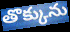
తొక్కును